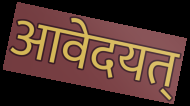
आवेदयत्